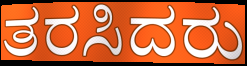
ತರಸಿದರು